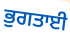
ਭੁਗਤਾਈ